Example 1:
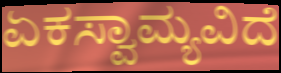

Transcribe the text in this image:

ಏಕಸ್ವಾಮ್ಯವಿದೆ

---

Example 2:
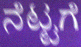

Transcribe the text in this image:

ನೆಟ್ಟಗೆ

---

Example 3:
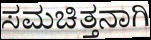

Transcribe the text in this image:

ಸಮಚಿತ್ತನಾಗಿ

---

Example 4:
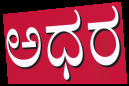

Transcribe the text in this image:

ಅಧರ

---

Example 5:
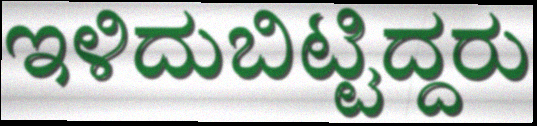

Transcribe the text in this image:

ಇಳಿದುಬಿಟ್ಟಿದ್ದರು